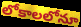
లోకాలలోనూ